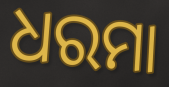
ଧରମା